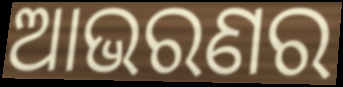
ଆଭରଣର